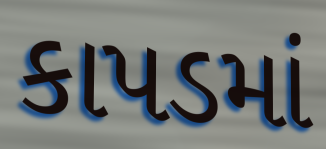
કાપડમાં